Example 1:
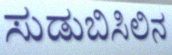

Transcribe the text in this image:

ಸುಡುಬಿಸಿಲಿನ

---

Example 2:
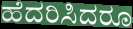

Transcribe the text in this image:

ಹೆದರಿಸಿದರೂ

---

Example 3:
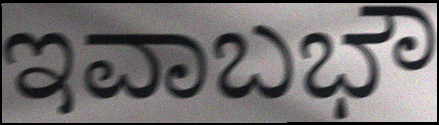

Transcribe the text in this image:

ಇವಾಬಭೌ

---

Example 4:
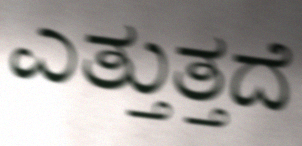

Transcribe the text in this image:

ಎತ್ತುತ್ತದೆ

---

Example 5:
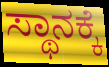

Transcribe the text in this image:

ಸ್ಥಾನಕ್ಕೆ